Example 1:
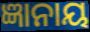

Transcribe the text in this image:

ଜ୍ଞାନାୟ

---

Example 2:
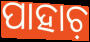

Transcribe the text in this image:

ପାହାଚ଼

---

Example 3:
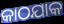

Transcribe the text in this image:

କାଠଯାକ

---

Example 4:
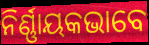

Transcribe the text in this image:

ନିର୍ଣ୍ଣାୟକଭାବେ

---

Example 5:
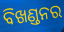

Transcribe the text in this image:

ବିଖଣ୍ଡନର